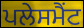
ਪਲੇਸਮੈਂਟ